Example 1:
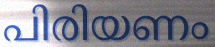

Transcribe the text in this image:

പിരിയണം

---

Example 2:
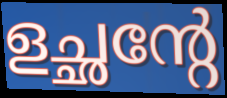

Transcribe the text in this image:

ളച്ഛന്റേ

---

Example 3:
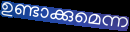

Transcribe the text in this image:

ഉണ്ടാക്കുമെന്ന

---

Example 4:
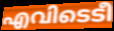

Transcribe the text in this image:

എവിടെടീ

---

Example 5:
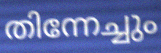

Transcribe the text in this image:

തിന്നേച്ചും